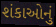
શંકાઓનું